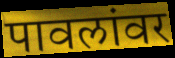
पावलांवर